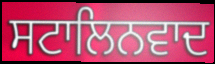
ਸਟਾਲਿਨਵਾਦ